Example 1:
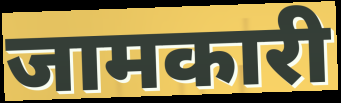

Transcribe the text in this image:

जामकारी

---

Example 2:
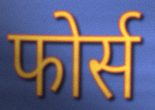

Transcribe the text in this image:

फोर्स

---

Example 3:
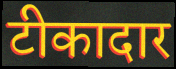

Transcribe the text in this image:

टीकादार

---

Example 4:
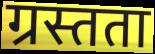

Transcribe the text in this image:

ग्रस्तता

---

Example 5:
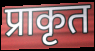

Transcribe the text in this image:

प्राकृत